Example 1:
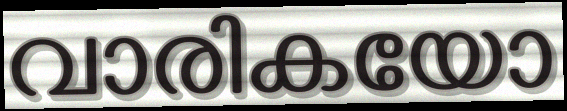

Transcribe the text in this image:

വാരികയോ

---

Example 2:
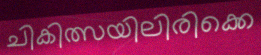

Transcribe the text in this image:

ചികിത്സയിലിരിക്കെ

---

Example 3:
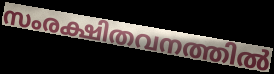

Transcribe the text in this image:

സംരക്ഷിതവനത്തിൽ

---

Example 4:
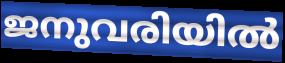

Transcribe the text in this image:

ജനുവരിയിൽ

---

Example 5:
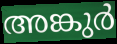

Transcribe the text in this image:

അങ്കുർ